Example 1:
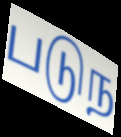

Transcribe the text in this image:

படுந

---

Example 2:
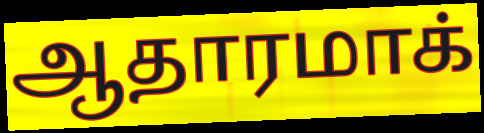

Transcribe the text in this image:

ஆதாரமாக்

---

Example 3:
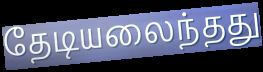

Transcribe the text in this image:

தேடியலைந்தது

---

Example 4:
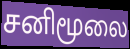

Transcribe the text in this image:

சனிமூலை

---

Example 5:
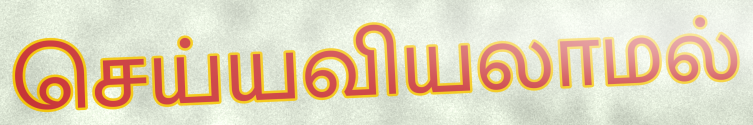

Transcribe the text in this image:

செய்யவியலாமல்